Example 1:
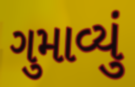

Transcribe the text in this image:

ગુમાવ્યું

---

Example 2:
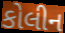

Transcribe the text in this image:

કોલીન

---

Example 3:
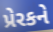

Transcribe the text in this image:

પ્રેરકને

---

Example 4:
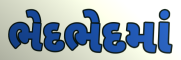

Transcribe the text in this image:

ભેદભેદમાં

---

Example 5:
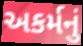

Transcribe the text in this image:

અકર્મનું